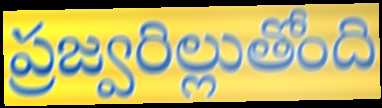
ప్రజ్వరిల్లుతోంది